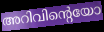
അറിവിന്റെയോ